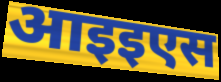
आइइएस